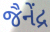
જૈનેંદ્ર